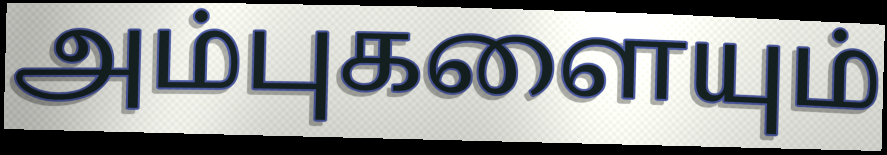
அம்புகளையும்